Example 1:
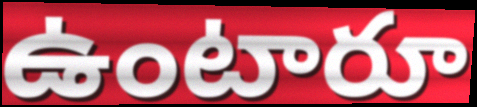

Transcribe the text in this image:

ఉంటారూ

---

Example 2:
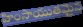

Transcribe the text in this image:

హింసాయుతమైన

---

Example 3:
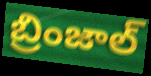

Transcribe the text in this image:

బ్రింజాల్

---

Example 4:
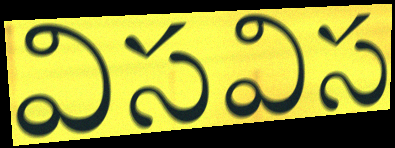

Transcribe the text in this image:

విసవిస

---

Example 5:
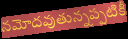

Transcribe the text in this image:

నమోదవుతున్నప్పటికీ